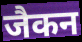
जैकन